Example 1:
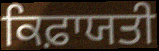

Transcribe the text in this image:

ਕਿਫ਼ਾਯਤੀ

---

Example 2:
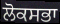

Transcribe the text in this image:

ਲੋਕਸਭਾ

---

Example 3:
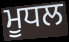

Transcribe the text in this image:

ਮੂਧਲ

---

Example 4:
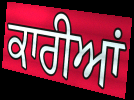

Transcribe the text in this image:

ਕਾਰੀਆਂ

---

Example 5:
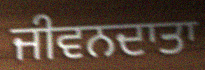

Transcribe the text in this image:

ਜੀਵਨਦਾਤਾ